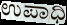
ಉಪಾಧಿ